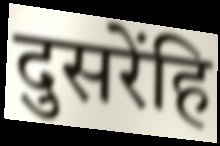
दुसरेंहि